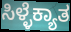
ಸಿಳ್ಳೆಕ್ಯಾತ